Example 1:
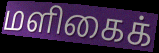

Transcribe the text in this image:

மளிகைக்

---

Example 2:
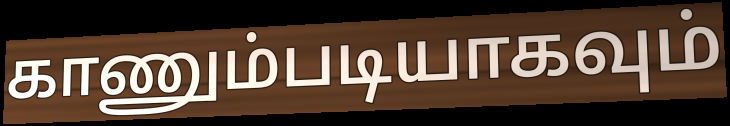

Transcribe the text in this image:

காணும்படியாகவும்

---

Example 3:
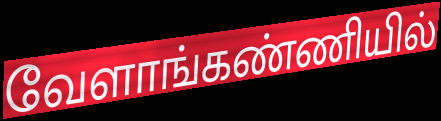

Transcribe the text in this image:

வேளாங்கண்ணியில்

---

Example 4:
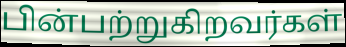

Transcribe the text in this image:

பின்பற்றுகிறவர்கள்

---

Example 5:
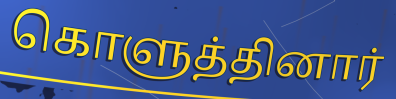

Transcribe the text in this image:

கொளுத்தினார்